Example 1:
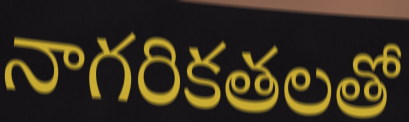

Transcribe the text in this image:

నాగరికతలతో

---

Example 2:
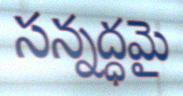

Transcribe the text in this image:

సన్నద్ధమై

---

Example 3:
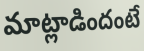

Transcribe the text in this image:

మాట్లాడిందంటే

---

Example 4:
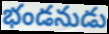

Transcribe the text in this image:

భండనుడు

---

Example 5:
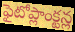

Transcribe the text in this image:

ఫైటోప్లాంక్టన్ల